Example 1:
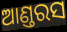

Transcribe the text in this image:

ଆଣ୍ଡରସ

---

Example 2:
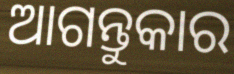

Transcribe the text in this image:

ଆଗନ୍ତୁକାର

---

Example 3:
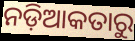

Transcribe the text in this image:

ନଡ଼ିଆକତାରୁ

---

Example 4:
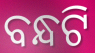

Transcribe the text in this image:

ବନ୍ଧଟି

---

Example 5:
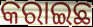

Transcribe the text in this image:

କରାଇଛ